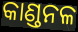
କାଣ୍ଡନଳ